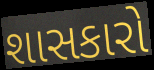
શાસકારો